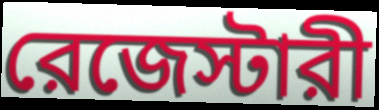
রেজেস্টারী